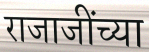
राजाजींच्या